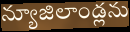
న్యూజిలాండ్లను